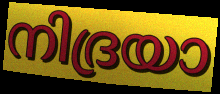
നിദ്രയാ